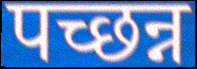
पच्छन्न